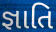
જ્ઞાતિ